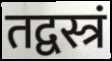
तद्वस्त्रं